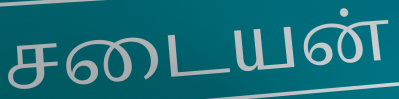
சடையன்